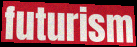
futurism